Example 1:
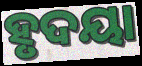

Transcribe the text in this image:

ହୃଦୟା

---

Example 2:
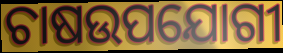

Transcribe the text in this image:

ଚାଷଉପଯୋଗୀ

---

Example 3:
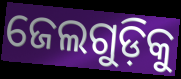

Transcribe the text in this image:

ଜେଲଗୁଡ଼ିକୁ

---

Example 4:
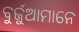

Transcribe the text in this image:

ବୁର୍ଜୁଆମାନେ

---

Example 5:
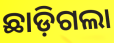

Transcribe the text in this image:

ଛାଡ଼ିଗଲା